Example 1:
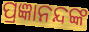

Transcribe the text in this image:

ପ୍ରଜ୍ଞାନନ୍ଦଙ୍କ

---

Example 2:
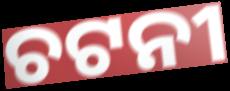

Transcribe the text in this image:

ଚଟନୀ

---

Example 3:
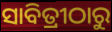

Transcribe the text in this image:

ସାବିତ୍ରୀଠାରୁ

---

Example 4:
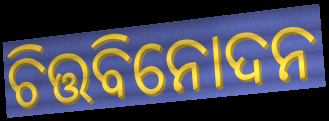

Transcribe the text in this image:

ଚିତ୍ତବିନୋଦନ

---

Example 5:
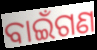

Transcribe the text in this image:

ବାଇଁଗଣ